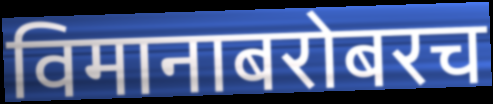
विमानाबरोबरच